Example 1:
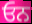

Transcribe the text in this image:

ਓਨ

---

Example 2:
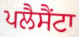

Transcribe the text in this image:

ਪਲੈਸੈਂਟਾ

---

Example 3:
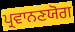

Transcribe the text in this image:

ਪ੍ਰਵਾਨਣਯੋਗ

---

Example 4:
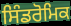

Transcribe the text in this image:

ਸਿੰਡਰੋਮਿਕ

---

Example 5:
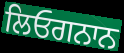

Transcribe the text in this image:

ਲਿਓਗਨਾਨ